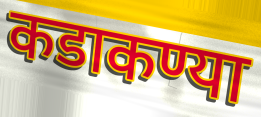
कडाकण्या